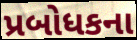
પ્રબોધકના